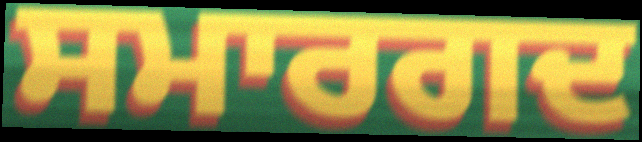
ਸਮਾਰਗਦ